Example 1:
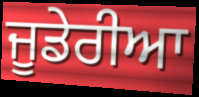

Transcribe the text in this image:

ਜੂਡੇਰੀਆ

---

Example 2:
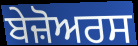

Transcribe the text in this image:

ਬੇਜ਼ੋਅਰਸ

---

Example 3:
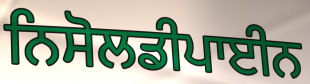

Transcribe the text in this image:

ਨਿਸੋਲਡੀਪਾਈਨ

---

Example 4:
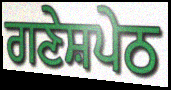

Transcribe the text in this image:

ਗਣੇਸ਼ਪੇਠ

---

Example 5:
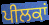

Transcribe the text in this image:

ਪੀਲਕਾਂ